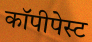
कॉपीपेस्ट